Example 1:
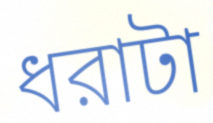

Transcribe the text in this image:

ধরাটা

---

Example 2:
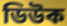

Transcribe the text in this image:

ডিউক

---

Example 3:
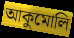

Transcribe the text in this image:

আকুমোলি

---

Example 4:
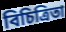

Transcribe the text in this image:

বিচিত্রিতা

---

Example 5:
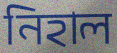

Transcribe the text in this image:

নিহাল